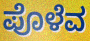
ಪೊಳೆವ